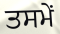
ਤਸਮੇਂ